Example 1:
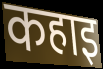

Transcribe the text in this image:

कहाइ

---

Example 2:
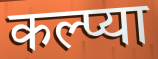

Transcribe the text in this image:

कल्प्या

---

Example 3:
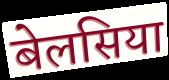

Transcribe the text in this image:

बेलसिया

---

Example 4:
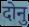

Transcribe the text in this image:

दोनु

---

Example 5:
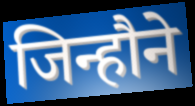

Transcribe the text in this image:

जिन्हौने